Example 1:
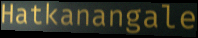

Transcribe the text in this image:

Hatkanangale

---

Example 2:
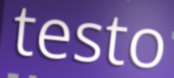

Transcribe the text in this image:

testo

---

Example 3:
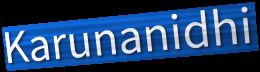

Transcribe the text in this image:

Karunanidhi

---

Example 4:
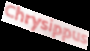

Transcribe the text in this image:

Chrysippus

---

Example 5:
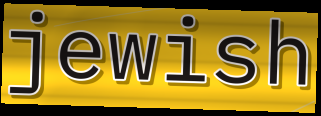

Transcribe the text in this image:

jewish